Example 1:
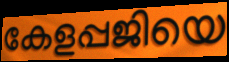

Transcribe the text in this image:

കേളപ്പജിയെ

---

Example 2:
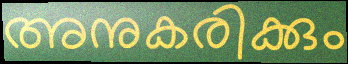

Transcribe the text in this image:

അനുകരിക്കും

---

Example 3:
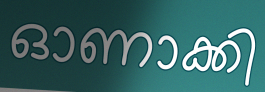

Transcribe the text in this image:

ഓണാക്കി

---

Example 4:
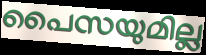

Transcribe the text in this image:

പൈസയുമില്ല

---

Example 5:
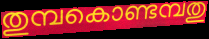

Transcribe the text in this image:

തുമ്പകൊണ്ടമ്പതു